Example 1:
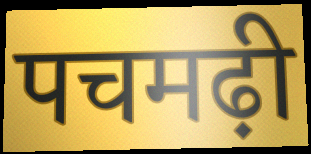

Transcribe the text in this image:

पचमढ़ी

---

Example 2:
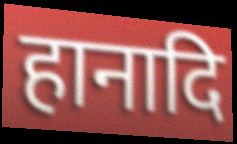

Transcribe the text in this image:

हानादि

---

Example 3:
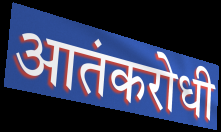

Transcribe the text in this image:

आतंकरोधी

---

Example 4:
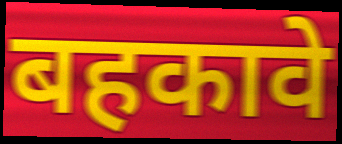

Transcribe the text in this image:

बहकावे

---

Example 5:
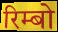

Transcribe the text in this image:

रिम्बो